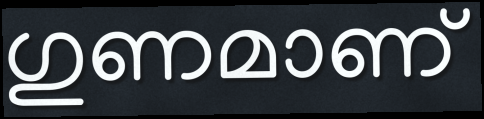
ഗുണമാണ്